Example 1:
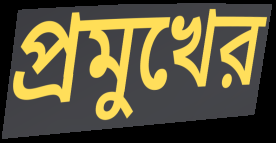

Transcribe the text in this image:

প্রমুখের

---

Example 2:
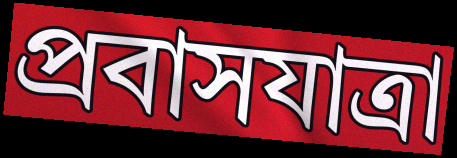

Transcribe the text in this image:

প্রবাসযাত্রা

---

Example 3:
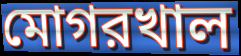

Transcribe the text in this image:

মোগরখাল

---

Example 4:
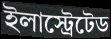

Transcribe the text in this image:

ইলাস্ট্রেটেড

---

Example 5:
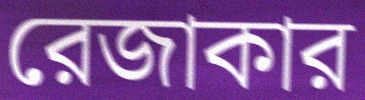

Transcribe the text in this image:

রেজাকার